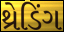
થ્રેડિંગ